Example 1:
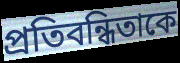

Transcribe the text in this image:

প্রতিবন্ধিতাকে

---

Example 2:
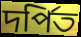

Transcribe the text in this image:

দর্পিত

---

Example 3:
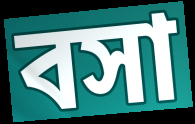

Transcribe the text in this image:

বসা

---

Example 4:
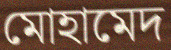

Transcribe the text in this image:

মোহামেদ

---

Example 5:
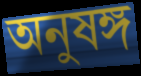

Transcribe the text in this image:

অনুষঙ্গ